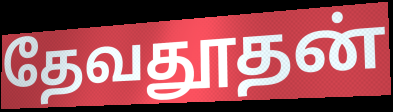
தேவதூதன்